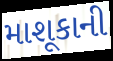
માશૂકાની